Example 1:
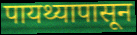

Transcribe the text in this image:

पायथ्यापासून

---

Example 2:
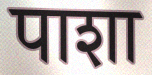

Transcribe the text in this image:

पाशा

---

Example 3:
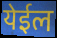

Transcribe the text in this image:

येईल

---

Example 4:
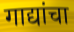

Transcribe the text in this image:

गाद्यांचा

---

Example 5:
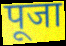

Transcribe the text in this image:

पूजा